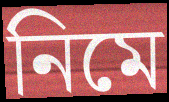
নিমে